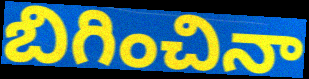
బిగించినా